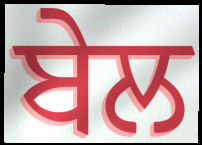
ਬੇਲ